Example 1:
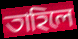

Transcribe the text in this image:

তাহিলে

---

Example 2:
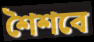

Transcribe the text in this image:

শৈশবে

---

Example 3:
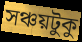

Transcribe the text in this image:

সঞ্চয়টুকু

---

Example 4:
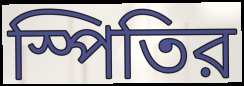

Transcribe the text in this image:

স্পিতির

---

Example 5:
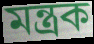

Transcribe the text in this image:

মন্ত্রক